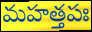
మహత్తపః